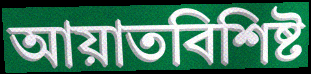
আয়াতবিশিষ্ট